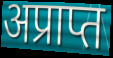
अप्राप्त